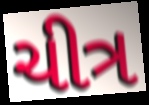
ચીત્ર